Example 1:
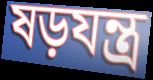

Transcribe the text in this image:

ষড়যন্ত্র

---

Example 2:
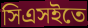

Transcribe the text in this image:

সিএসইতে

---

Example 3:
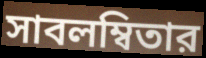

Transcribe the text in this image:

সাবলম্বিতার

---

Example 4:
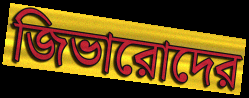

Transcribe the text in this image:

জিভারোদের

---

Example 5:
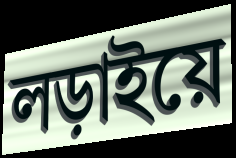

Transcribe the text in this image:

লড়াইয়ে